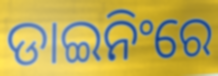
ଡାଇନିଂରେ